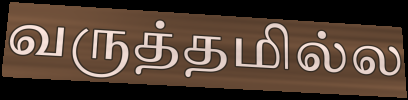
வருத்தமில்ல